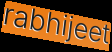
rabhijeet